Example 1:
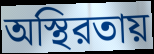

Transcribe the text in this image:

অস্থিরতায়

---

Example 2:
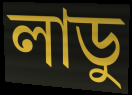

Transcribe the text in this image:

লাডু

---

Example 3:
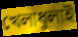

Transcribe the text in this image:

খেলাধুলাই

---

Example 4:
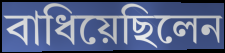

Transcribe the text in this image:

বাধিয়েছিলেন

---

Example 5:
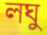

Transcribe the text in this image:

লঘু